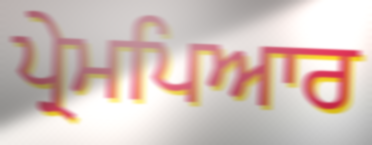
ਪ੍ਰੇਮਪਿਆਰ